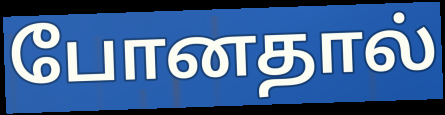
போனதால்